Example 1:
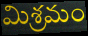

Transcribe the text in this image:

మిశ్రమం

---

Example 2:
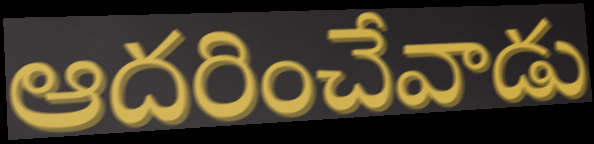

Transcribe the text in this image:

ఆదరించేవాడు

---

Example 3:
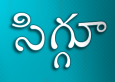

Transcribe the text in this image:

సిగ్గూ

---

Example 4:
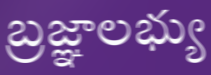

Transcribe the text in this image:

బ్రజ్ఞాలభ్యు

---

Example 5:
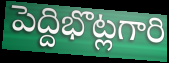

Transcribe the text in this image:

పెద్దిభొట్లగారి